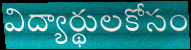
విద్యార్థులకోసం